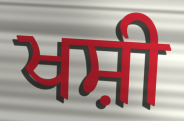
ਖਸ਼ੀ